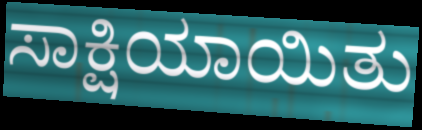
ಸಾಕ್ಷಿಯಾಯಿತು